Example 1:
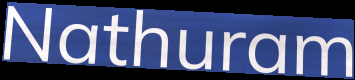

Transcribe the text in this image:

Nathuram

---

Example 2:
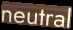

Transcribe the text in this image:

neutral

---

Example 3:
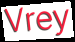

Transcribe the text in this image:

Vrey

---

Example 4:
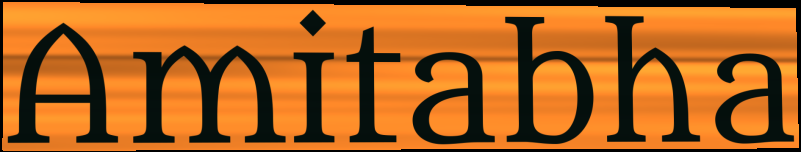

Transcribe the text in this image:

Amitabha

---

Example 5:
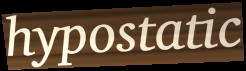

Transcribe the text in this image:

hypostatic